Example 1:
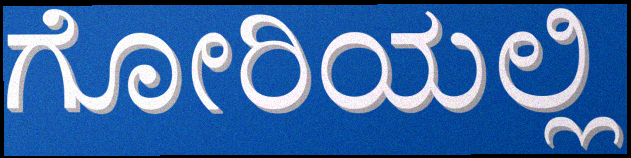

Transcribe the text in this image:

ಗೋರಿಯಲ್ಲಿ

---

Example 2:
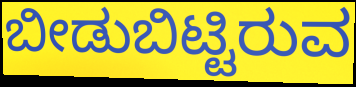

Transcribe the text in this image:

ಬೀಡುಬಿಟ್ಟಿರುವ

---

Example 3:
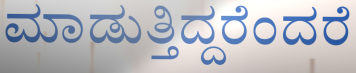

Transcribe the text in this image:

ಮಾಡುತ್ತಿದ್ದರೆಂದರೆ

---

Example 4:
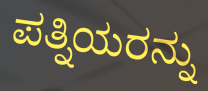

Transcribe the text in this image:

ಪತ್ನಿಯರನ್ನು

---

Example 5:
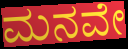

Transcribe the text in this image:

ಮನವೇ